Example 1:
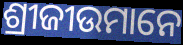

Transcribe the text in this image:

ଶ୍ରୀଜୀଉମାନେ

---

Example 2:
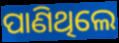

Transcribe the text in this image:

ପାଣିଥିଲେ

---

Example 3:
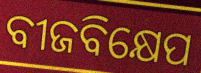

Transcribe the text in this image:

ବୀଜବିକ୍ଷେପ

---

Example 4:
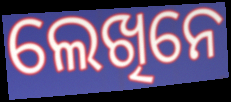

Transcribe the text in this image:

ଲେଖିନେ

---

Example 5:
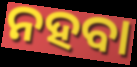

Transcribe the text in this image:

ନହବା